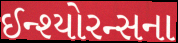
ઈન્શ્યોરન્સના